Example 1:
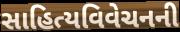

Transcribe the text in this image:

સાહિત્યવિવેચનની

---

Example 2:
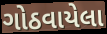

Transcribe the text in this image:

ગોઠવાયેલા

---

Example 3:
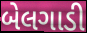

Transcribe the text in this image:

બેલગાડી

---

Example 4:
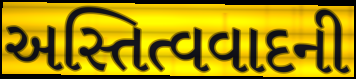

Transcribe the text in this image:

અસ્તિત્વવાદની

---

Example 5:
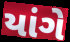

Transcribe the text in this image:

યાંગે